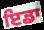
ਇਡਾ